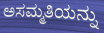
ಅಸಮ್ಮತಿಯನ್ನು